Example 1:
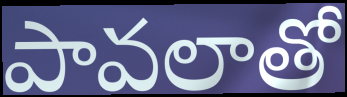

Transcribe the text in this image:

పావలాతో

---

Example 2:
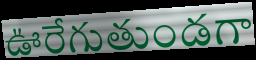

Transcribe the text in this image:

ఊరేగుతుండగా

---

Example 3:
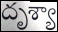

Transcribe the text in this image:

దృశ్యా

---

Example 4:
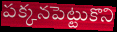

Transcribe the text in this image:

పక్కనపెట్టుకొని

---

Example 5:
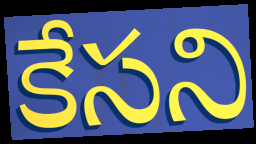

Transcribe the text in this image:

కేసని